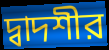
দ্বাদশীর